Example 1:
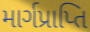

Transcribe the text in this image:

માર્ગપ્રાપ્તિ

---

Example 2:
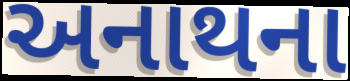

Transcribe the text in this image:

અનાથના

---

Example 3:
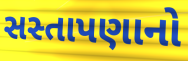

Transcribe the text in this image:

સસ્તાપણાનો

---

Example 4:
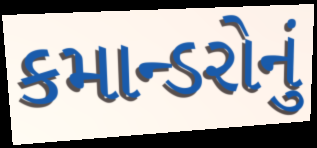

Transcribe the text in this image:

કમાન્ડરોનું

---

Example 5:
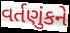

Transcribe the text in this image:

વર્તણુંકને